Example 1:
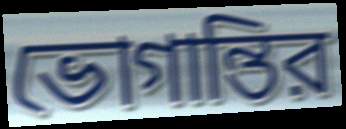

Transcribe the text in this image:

ভোগান্তির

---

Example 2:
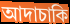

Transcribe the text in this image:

আদাচাকি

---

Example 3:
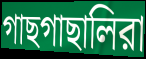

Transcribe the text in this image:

গাছগাছালিরা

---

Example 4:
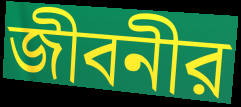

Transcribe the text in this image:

জীবনীর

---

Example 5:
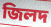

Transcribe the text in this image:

জিলদ